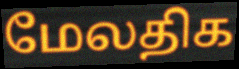
மேலதிக